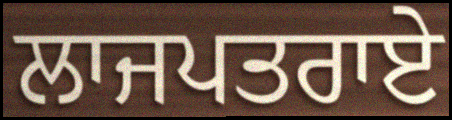
ਲਾਜਪਤਰਾਏ